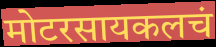
मोटरसायकलचं